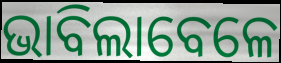
ଭାବିଲାବେଳେ